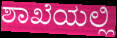
ಶಾಖೆಯಲ್ಲಿ